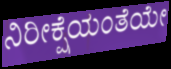
ನಿರೀಕ್ಷೆಯಂತೆಯೇ